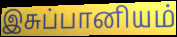
இசுப்பானியம்